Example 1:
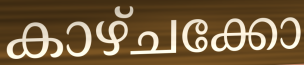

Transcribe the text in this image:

കാഴ്ചക്കോ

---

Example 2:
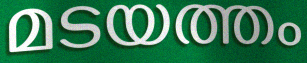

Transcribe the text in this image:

മടയത്തം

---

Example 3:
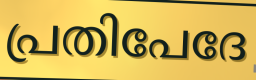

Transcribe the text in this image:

പ്രതിപേദേ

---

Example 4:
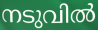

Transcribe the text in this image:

നടുവിൽ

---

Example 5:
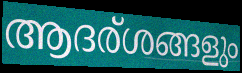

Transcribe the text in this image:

ആദര്ശങ്ങളും